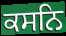
ਕਸਨਿ